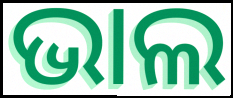
ଭାଲ